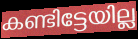
കണ്ടിട്ടേയില്ല